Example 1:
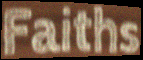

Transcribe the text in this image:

Faiths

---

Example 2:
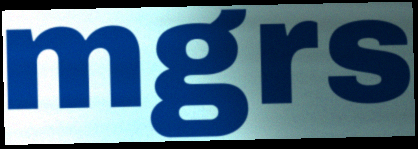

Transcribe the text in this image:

mgrs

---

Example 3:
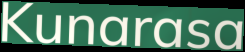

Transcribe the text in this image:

Kunarasa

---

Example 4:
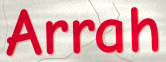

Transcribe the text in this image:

Arrah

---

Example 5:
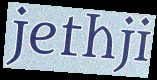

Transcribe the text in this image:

jethji